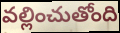
వల్లించుతోంది